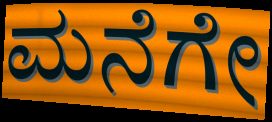
ಮನೆಗೇ